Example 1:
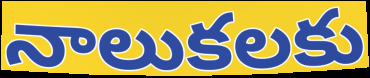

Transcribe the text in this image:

నాలుకలకు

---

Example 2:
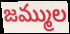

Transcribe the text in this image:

జమ్ముల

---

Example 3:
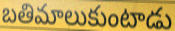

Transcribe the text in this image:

బతిమాలుకుంటాడు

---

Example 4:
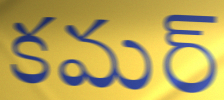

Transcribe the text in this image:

కమర్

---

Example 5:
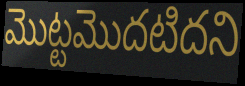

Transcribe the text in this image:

మొట్టమొదటిదని